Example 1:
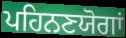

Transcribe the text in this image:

ਪਹਿਨਣਯੋਗਾਂ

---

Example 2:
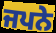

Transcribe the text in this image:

ਜਪਨੇ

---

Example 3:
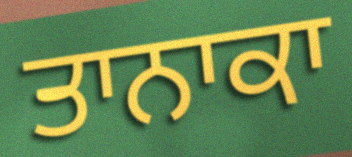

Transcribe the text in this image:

ਤਾਨਾਕਾ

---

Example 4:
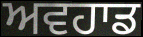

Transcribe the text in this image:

ਅਵਹਾਡ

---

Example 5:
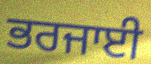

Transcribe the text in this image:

ਭਰਜਾਈ